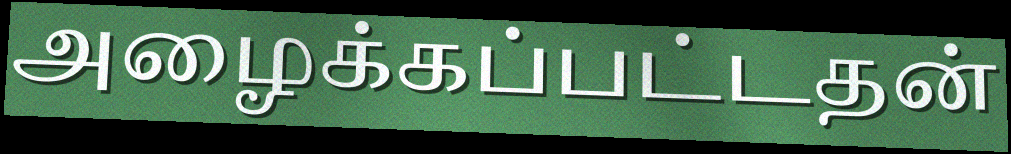
அழைக்கப்பட்டதன்